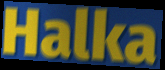
Halka